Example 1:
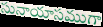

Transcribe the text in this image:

సునాయాసముగా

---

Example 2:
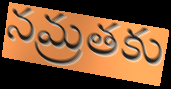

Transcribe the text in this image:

నమ్రతకు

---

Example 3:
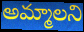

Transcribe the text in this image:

అమ్మాలని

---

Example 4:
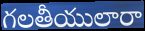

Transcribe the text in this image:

గలతీయులారా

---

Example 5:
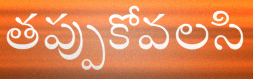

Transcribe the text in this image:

తప్పుకోవలసి